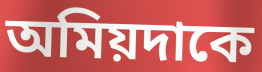
অমিয়দাকে